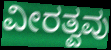
ವೀರತ್ವವು